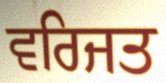
ਵਰਿਜਤ